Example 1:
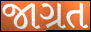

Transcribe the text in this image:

જાગ્રત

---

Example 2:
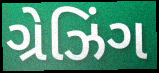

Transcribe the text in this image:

ગ્રેઝિંગ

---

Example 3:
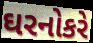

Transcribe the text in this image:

ઘરનોકરે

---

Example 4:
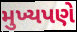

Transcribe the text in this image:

મુખ્યપણે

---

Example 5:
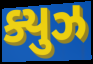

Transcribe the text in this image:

ક્યુઝ